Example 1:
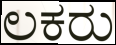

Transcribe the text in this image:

ಲಕರು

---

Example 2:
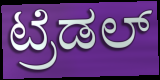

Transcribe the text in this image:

ಟ್ರೆಡಲ್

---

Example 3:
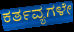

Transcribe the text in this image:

ಕರ್ತವ್ಯಗಳೇ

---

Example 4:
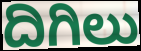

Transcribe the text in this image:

ದಿಗಿಲು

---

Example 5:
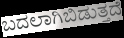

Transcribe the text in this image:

ಬದಲಾಗಿಬಿಡುತ್ತದೆ